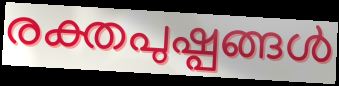
രക്തപുഷ്പങ്ങൾ